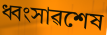
ধ্বংসাৱশেষ